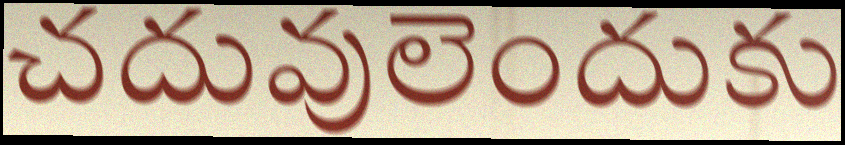
చదువులెందుకు